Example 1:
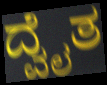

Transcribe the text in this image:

ದ್ವೈತ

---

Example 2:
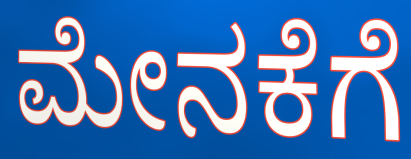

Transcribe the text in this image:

ಮೇನಕೆಗೆ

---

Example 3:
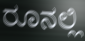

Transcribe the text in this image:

ರೂನಲ್ಲಿ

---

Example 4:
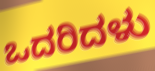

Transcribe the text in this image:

ಒದರಿದಳು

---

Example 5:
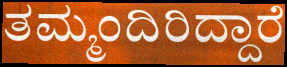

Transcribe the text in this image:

ತಮ್ಮಂದಿರಿದ್ದಾರೆ